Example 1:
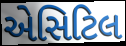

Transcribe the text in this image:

એસિટિલ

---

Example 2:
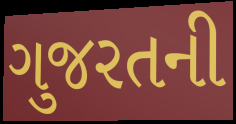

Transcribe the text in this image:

ગુજરતની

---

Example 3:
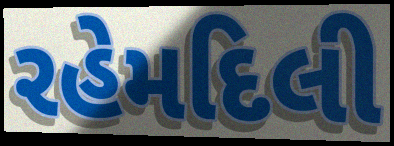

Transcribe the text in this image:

રહેમદિલી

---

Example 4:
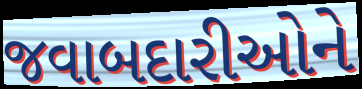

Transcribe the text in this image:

જવાબદારીઓને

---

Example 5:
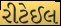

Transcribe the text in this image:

રીટેઈલ